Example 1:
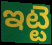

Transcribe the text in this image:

ఇట్టె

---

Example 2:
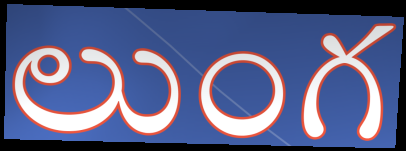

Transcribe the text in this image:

లుంగ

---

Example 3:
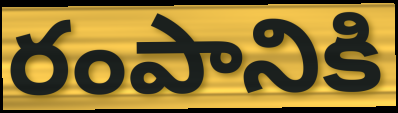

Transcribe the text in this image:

రంపానికి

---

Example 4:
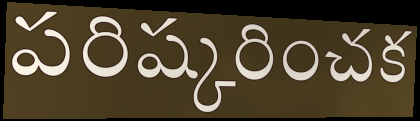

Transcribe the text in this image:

పరిష్కరించక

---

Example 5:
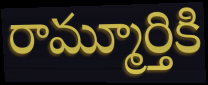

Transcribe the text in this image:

రామ్మూర్తికి